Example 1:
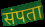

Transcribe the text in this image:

संपता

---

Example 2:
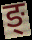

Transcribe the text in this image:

ङ्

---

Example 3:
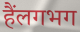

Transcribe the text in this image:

हैंलगभग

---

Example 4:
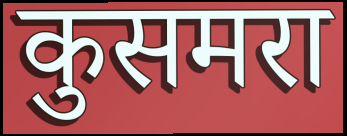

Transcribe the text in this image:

कुसमरा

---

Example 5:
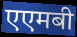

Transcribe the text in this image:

एएमबी